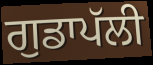
ਗੁਡਾਪੱਲੀ